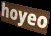
hoyeo